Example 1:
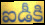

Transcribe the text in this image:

ఐడీకి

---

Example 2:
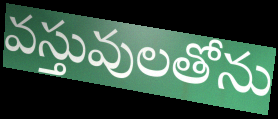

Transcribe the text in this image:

వస్తువులతోను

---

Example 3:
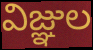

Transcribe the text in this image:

విజ్ఞుల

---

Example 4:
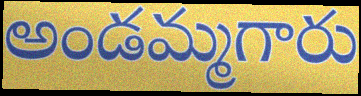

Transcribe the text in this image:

అండమ్మగారు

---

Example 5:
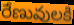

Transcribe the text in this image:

రేణువులకి